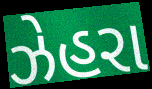
ઝેહરા